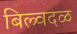
बिल्वदळ